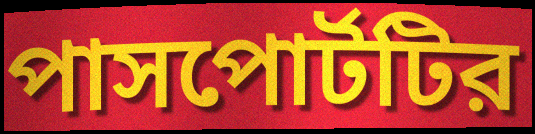
পাসপোর্টটির